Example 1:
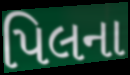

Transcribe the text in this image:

પિલના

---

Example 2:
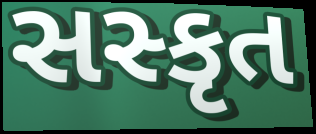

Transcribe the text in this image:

સસ્કૃત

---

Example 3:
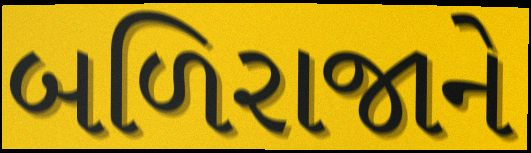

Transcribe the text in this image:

બળિરાજાને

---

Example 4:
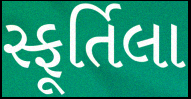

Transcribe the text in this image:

સ્ફૂર્તિલા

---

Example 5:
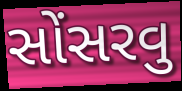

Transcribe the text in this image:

સોંસરવુ